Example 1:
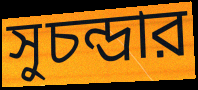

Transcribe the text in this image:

সুচন্দ্রার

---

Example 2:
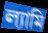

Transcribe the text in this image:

ল্যামি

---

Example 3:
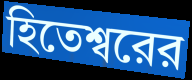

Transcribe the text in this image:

হিতেশ্বরের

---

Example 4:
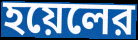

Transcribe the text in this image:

হয়েলের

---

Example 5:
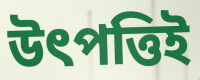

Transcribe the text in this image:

উৎপত্তিই